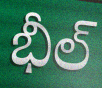
భీల్